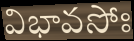
విభావసోః